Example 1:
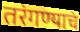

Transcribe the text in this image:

तरंगण्याचं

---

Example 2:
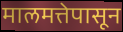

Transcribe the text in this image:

मालमत्तेपासून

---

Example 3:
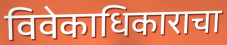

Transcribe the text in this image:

विवेकाधिकाराचा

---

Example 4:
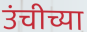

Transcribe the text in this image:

उंचीच्या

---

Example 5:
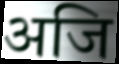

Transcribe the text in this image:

अजि